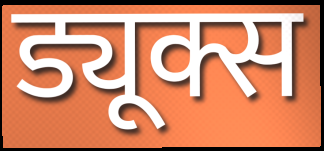
ड्यूक्स